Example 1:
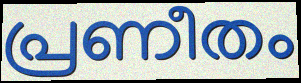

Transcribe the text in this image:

പ്രണീതം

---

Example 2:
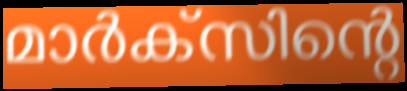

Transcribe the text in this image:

മാർക്‌സിന്റെ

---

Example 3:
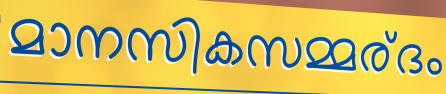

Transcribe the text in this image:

മാനസികസമ്മര്ദം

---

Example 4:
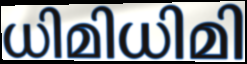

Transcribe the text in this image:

ധിമിധിമി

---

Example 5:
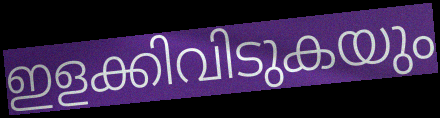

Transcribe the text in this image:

ഇളക്കിവിടുകയും